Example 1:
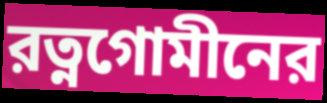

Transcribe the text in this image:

রত্নগোমীনের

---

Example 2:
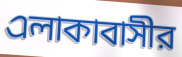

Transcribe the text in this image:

এলাকাবাসীর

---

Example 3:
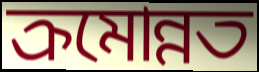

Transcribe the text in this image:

ক্রমোন্নত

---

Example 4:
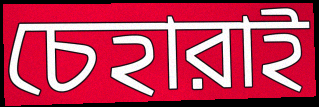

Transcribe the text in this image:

চেহারাই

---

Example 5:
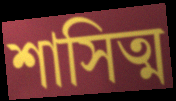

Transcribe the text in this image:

শাসিত্ম